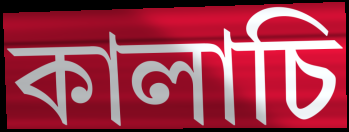
কালাচি